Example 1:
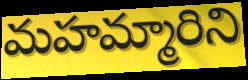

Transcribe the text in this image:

మహమ్మారిని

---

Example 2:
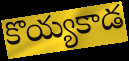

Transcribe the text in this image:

కొయ్యకాడ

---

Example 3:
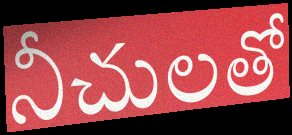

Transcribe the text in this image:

నీచులతో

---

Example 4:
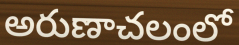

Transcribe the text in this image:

అరుణాచలంలో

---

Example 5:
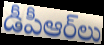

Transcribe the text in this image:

డీపీఆర్‌లు